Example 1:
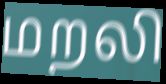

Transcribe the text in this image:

மறலி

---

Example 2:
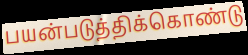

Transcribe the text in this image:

பயன்படுத்திக்கொண்டு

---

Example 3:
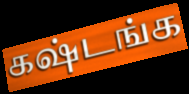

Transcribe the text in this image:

கஷ்டங்க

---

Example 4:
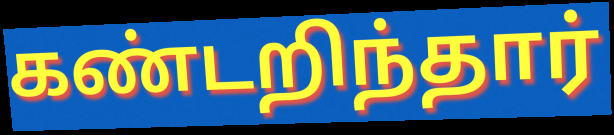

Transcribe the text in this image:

கண்டறிந்தார்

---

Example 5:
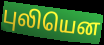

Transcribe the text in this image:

புலியென